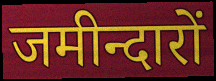
जमीन्दारों